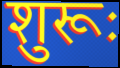
शुरूः